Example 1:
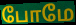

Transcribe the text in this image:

போமே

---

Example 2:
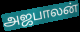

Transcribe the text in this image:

அஜபாலன்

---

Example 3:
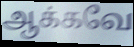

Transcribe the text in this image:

ஆக்கவே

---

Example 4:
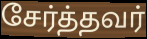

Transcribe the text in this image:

சேர்த்தவர்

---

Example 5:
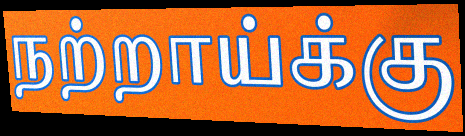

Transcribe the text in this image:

நற்றாய்க்கு